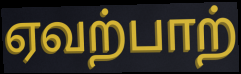
ஏவற்பாற்